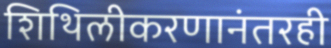
शिथिलीकरणानंतरही